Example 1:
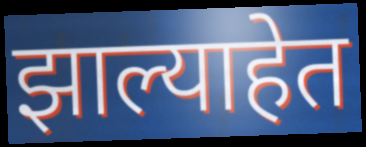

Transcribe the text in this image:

झाल्याहेत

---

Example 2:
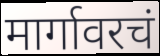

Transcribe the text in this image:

मार्गावरचं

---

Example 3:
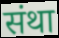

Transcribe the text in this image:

संथा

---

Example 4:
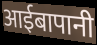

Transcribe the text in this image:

आईबापानी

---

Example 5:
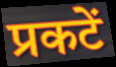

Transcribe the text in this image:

प्रकटें